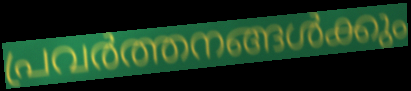
പ്രവർത്തനങ്ങൾക്കും